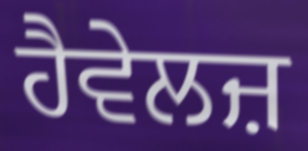
ਹੈਵੇਲਜ਼